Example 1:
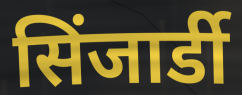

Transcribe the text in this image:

सिंजार्डी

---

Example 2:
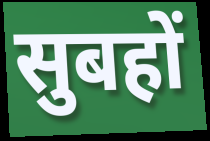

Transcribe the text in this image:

सुबहों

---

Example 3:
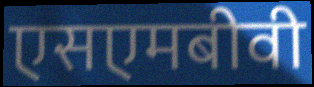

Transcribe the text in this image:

एसएमबीवी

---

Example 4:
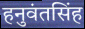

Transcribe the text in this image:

हनुवंतसिंह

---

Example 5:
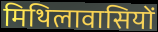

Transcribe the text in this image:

मिथिलावासियों